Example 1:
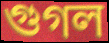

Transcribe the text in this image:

গুগল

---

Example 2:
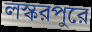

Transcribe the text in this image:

লস্করপুরে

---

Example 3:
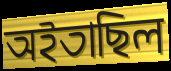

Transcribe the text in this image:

অইতাছিল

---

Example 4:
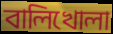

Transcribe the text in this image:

বালিখোলা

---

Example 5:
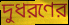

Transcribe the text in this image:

দুধরণের